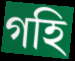
গহি